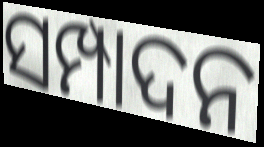
ସମ୍ପାଦନ